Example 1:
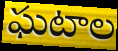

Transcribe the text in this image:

ఘటాల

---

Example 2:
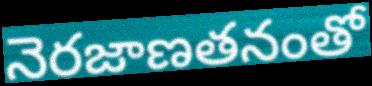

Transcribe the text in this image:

నెరజాణతనంతో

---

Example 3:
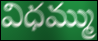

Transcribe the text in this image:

విధమ్ము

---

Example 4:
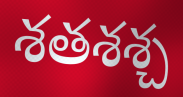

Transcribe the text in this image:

శతశశ్చ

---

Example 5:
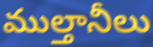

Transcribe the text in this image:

ముల్తానీలు